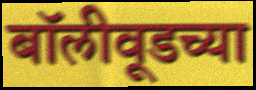
बॉलीवूडच्या